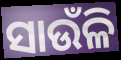
ସାଉଁଳି